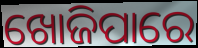
ଖୋଜିପାରେ